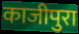
काजीपुरा